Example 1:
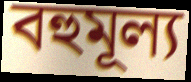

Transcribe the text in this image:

বহুমূল্য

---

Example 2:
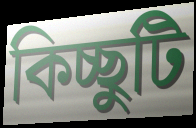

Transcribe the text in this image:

কিচ্ছুটি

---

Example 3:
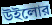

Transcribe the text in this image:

উইলোর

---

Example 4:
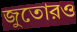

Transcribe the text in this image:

জুতোরও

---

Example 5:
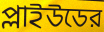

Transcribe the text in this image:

প্লাইউডের